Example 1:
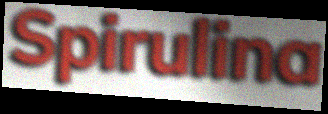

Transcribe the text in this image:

Spirulina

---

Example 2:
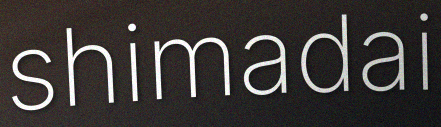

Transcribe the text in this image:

shimadai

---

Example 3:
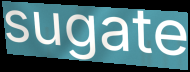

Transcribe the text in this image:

sugate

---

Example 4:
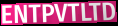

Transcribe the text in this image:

ENTPVTLTD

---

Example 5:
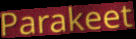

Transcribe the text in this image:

Parakeet